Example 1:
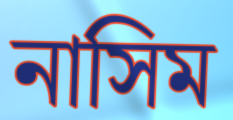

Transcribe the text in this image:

নাসিম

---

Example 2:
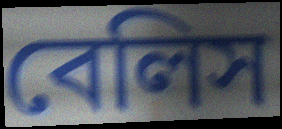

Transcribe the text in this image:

বেলিস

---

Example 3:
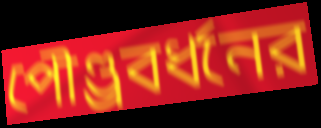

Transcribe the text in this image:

পৌণ্ড্রবর্ধনের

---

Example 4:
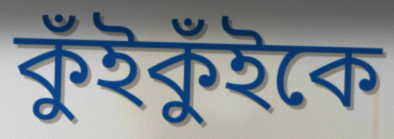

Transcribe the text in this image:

কুঁইকুঁইকে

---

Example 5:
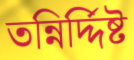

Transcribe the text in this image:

তন্নির্দ্দিষ্ট